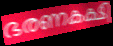
ഭരണകക്ഷി